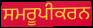
ਸਮਰੂਪੀਕਰਨ